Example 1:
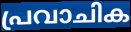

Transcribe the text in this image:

പ്രവാചിക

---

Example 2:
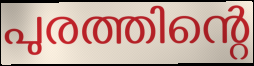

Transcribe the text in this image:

പുരത്തിന്റെ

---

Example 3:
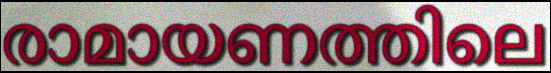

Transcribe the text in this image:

രാമായണത്തിലെ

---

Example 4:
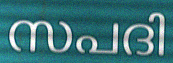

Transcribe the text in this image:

സപദി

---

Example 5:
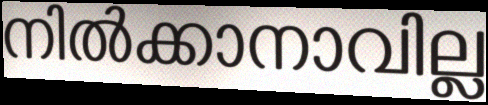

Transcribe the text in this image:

നിൽക്കാനാവില്ല